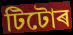
টিটোৰ